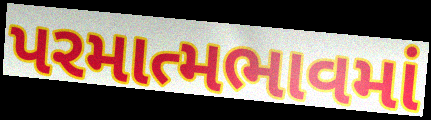
પરમાત્મભાવમાં